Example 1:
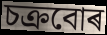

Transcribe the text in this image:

চক্ৰবোৰ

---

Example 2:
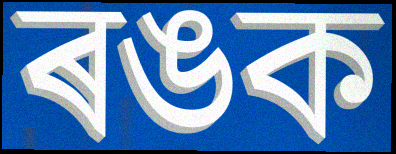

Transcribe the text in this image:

ৰঙক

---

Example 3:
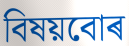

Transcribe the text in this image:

বিষয়বোৰ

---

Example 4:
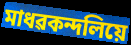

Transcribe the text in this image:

মাধৱকন্দলিয়ে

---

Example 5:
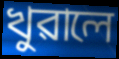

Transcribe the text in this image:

খুৱালে